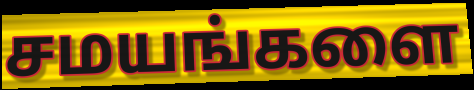
சமயங்களை